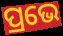
ପ୍ରଭେ